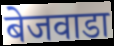
बेजवाडा